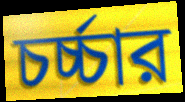
চর্চ্চার